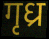
गृध्र